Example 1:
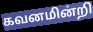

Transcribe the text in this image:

கவனமின்றி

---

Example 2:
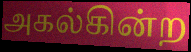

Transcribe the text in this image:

அகல்கின்ற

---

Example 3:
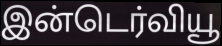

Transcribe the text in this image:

இன்டெர்வியூ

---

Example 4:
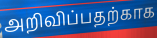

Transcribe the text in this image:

அறிவிப்பதற்காக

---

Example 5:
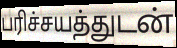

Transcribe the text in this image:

பரிச்சயத்துடன்